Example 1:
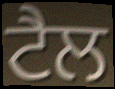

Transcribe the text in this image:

ਟੈਲ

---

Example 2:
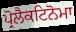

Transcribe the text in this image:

ਪ੍ਰੋਲੈਕਟਿਨੋਮਾ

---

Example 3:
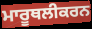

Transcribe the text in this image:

ਮਾਰੂਥਲੀਕਰਨ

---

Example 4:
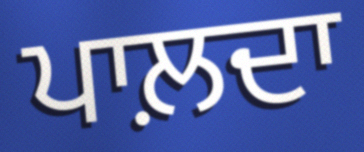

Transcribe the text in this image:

ਪਾਲ਼ਦਾ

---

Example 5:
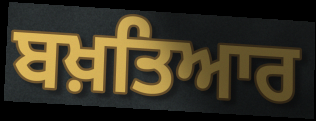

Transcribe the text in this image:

ਬਖ਼ਤਿਆਰ